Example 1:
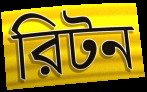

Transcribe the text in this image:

রিটন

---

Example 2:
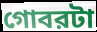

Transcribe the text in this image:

গোবরটা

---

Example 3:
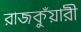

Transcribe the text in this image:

রাজকুঁয়ারী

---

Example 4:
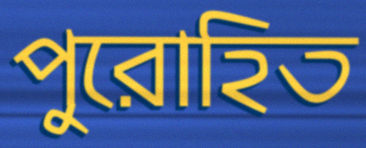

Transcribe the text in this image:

পুরোহিত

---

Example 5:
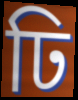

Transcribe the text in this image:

ঢি